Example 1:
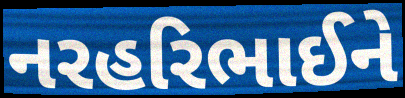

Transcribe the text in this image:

નરહરિભાઈને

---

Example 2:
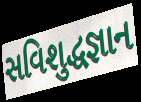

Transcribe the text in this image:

સવિશુદ્ધજ્ઞાન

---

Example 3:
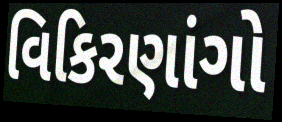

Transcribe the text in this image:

વિકિરણાંગો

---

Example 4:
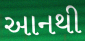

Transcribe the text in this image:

આનથી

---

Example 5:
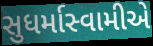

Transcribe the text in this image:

સુધર્માસ્વામીએ